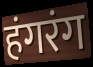
हंगरंग